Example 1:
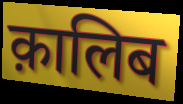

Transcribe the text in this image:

क़ालिब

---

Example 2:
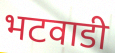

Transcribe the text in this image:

भटवाडी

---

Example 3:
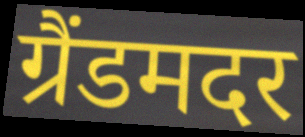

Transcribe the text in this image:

ग्रैंडमदर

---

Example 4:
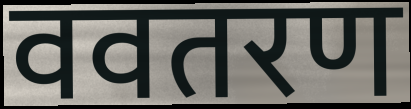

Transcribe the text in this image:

ववतरण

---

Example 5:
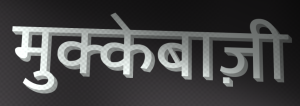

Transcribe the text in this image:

मुक्केबाज़ी